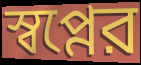
স্বপ্নের